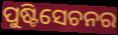
ପୁଷ୍ଟିସେଚନର